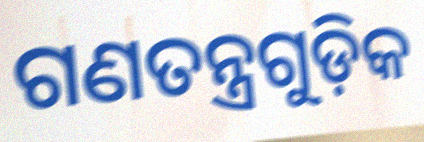
ଗଣତନ୍ତ୍ରଗୁଡ଼ିକ